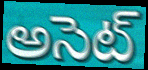
అసెట్